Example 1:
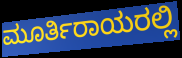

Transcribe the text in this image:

ಮೂರ್ತಿರಾಯರಲ್ಲಿ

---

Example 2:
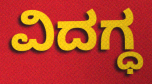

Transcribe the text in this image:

ವಿದಗ್ಧ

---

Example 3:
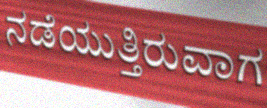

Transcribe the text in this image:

ನಡೆಯುತ್ತಿರುವಾಗ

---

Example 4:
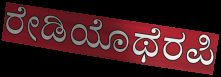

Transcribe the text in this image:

ರೇಡಿಯೊಥೆರಪಿ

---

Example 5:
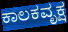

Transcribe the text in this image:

ಕಾಲಕವೃಕ್ಷ